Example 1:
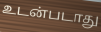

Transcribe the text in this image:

உடன்படாது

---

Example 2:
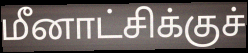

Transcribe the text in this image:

மீனாட்சிக்குச்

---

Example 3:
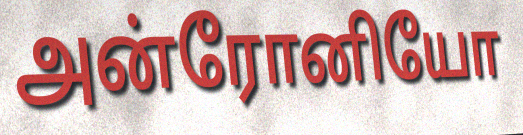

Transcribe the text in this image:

அன்ரோனியோ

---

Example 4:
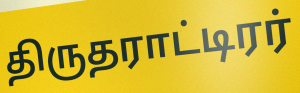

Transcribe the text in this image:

திருதராட்டிரர்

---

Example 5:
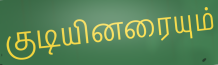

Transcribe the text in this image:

குடியினரையும்